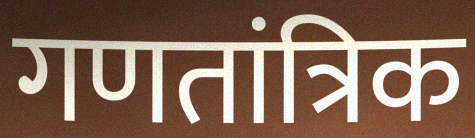
गणतांत्रिक